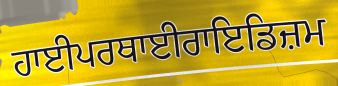
ਹਾਈਪਰਥਾਈਰਾਇਡਿਜ਼ਮ